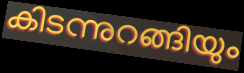
കിടന്നുറങ്ങിയും